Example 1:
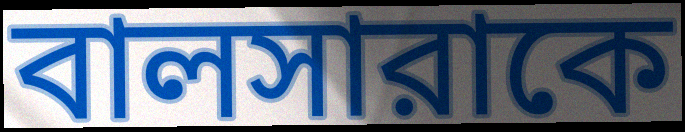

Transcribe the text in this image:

বালসারাকে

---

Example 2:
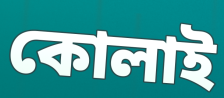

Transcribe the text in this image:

কোলাই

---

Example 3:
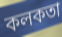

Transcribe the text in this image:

কলকতা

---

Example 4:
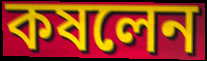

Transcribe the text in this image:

কষলেন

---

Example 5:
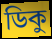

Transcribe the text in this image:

ডিকু